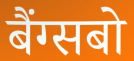
बैंग्सबो